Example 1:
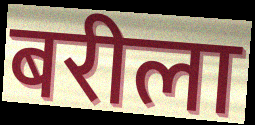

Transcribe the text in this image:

बरीला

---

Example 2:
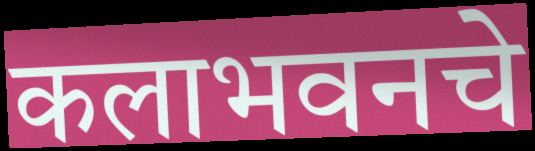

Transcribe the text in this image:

कलाभवनचे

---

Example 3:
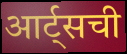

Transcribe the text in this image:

आर्ट्सची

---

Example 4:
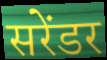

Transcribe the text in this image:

सरेंडर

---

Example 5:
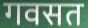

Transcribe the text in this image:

गवसत